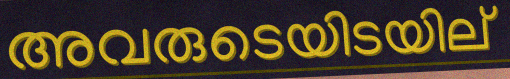
അവരുടെയിടയില്